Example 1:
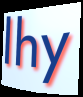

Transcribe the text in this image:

lhy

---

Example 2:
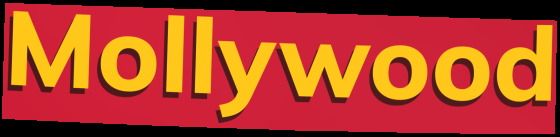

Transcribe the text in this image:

Mollywood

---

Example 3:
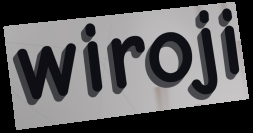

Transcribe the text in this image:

wiroji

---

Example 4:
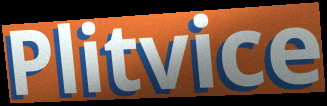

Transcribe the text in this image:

Plitvice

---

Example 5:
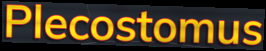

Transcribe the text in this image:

Plecostomus